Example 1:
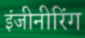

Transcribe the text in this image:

इंजीनीरिंग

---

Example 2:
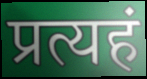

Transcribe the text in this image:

प्रत्यहं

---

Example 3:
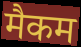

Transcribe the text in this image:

मैकम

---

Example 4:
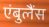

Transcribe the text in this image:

एंबुलैंस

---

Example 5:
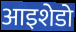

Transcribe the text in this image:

आइशेडो